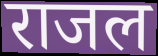
राजल